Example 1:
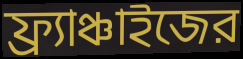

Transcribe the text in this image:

ফ্র্যাঞ্চাইজের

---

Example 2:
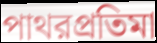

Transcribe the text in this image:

পাথরপ্রতিমা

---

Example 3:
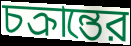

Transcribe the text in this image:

চক্রান্তের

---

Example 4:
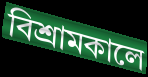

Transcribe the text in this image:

বিশ্রামকালে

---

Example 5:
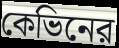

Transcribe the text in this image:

কেভিনের